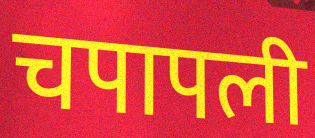
चपापली